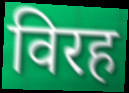
विरह